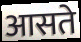
आसते